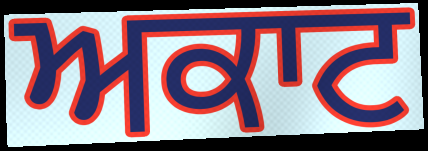
ਅਕਾਟ